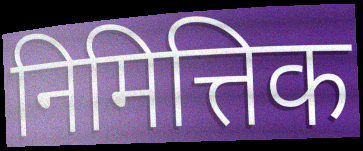
निमित्तिक